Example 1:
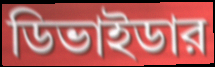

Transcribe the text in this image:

ডিভাইডার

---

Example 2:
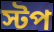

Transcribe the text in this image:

স্টপ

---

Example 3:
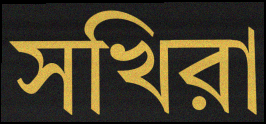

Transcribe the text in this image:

সখিরা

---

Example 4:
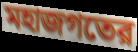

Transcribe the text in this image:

মহাজগতের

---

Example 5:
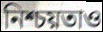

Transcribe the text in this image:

নিশ্চয়তাও